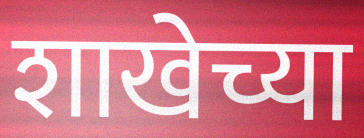
शाखेच्या